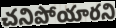
చనిపోయారని